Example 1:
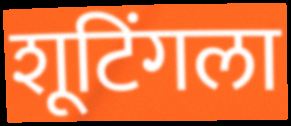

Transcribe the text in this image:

शूटिंगला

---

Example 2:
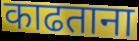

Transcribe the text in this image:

काढताना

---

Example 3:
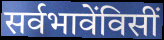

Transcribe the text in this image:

सर्वभावेंविसीं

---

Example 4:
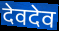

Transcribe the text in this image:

देवदेव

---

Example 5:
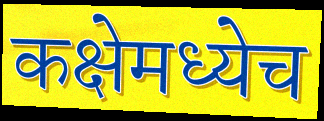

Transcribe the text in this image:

कक्षेमध्येच